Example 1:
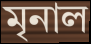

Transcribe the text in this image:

মৃনাল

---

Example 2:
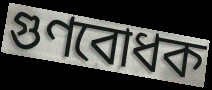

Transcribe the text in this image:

গুণবোধক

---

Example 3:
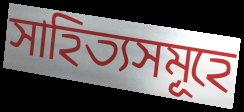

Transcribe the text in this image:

সাহিত্যসমূহে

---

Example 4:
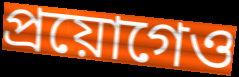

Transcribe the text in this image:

প্ৰয়োগেও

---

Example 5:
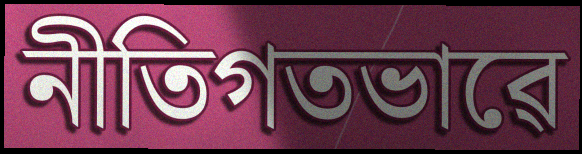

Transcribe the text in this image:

নীতিগতভাৱে